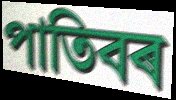
পাতিবৰ